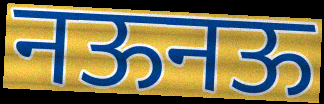
नऊनऊ